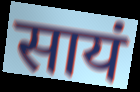
सायं